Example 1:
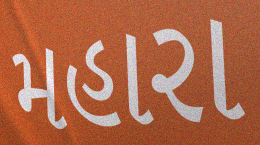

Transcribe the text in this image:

મહારા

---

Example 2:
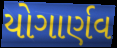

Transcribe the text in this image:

યોગાર્ણવ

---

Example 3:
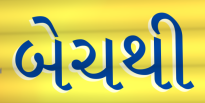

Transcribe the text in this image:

બેચથી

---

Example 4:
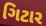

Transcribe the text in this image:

ગિટાર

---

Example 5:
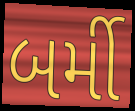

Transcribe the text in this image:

બર્મી